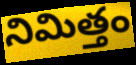
నిమిత్తం